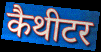
कैथीटर